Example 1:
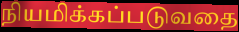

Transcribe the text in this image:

நியமிக்கப்படுவதை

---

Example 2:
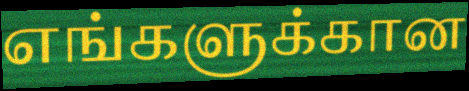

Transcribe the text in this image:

எங்களுக்கான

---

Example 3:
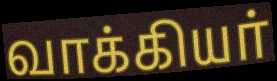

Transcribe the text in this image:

வாக்கியர்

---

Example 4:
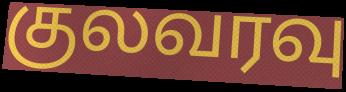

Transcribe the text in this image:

குலவரவு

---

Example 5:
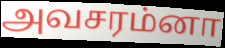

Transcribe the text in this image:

அவசரம்னா